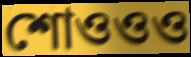
শোওওও